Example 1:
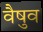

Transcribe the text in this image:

वैषुव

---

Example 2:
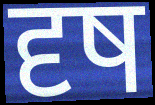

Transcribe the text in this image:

दृष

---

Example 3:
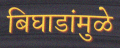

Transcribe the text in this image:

बिघाडांमुळे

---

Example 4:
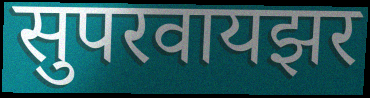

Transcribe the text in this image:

सुपरवायझर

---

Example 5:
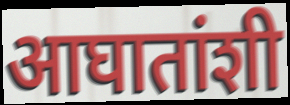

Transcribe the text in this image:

आघातांशी